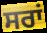
ਸਰਾਂ